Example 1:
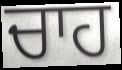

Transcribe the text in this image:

ਚਾਹ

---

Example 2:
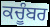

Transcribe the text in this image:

ਕਚੂੰਬਰ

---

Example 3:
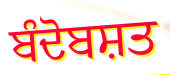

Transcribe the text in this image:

ਬੰਦੋਬਸ਼ਤ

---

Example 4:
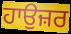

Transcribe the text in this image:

ਹਾਉਜ਼ਰ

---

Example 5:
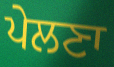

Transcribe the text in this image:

ਪੇਲਣਾ